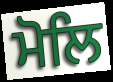
ਮੋਲਿ